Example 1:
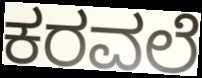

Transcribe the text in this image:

ಕರವಲೆ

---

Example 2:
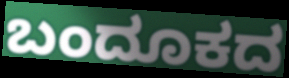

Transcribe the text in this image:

ಬಂದೂಕದ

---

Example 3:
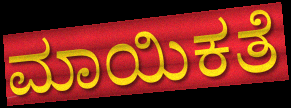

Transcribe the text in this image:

ಮಾಯಿಕತೆ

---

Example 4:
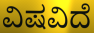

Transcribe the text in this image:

ವಿಷವಿದೆ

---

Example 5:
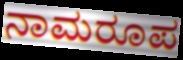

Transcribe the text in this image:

ನಾಮರೂಪ